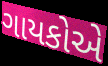
ગાયકોએ